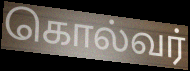
கொல்வர்